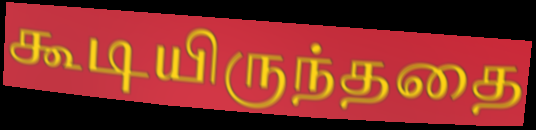
கூடியிருந்ததை